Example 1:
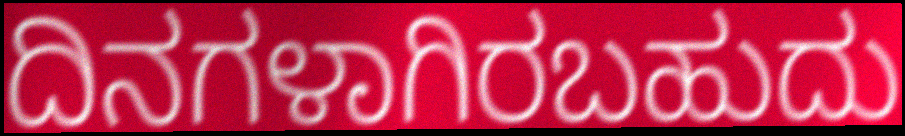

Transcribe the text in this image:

ದಿನಗಳಾಗಿರಬಹುದು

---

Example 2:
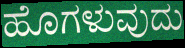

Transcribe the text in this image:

ಹೊಗಳುವುದು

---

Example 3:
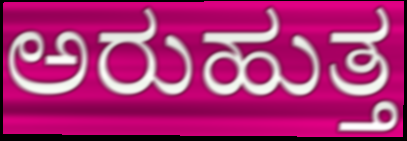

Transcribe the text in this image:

ಅರುಹುತ್ತ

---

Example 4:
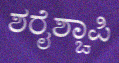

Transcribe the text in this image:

ಶರೈಶ್ಚಾಪಿ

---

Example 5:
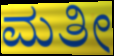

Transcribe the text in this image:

ಮತೀ